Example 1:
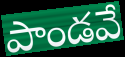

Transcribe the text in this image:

పాండవే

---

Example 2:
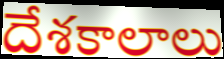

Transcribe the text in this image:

దేశకాలాలు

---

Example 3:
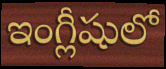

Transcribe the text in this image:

ఇంగ్లీషులో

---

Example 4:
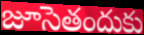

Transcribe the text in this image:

జూసెతందుకు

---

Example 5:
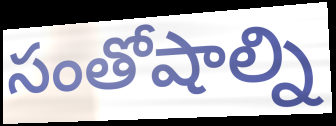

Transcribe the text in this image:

సంతోషాల్ని